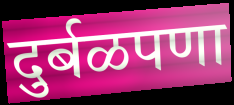
दुर्बळपणा